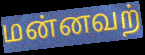
மன்னவற்